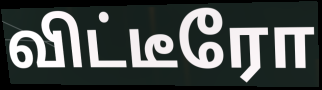
விட்டீரோ